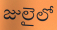
జులైలో